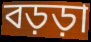
বড়ড়া